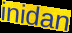
inidan